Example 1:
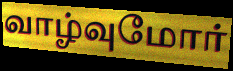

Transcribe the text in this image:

வாழ்வுமோர்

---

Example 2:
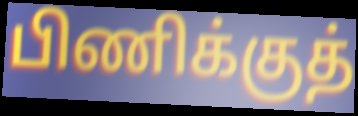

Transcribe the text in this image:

பிணிக்குத்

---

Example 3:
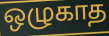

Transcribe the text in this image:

ஒழுகாத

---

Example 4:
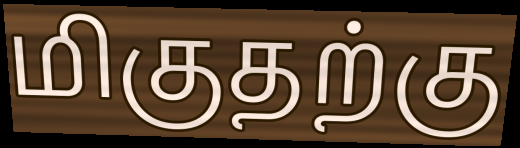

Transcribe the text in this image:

மிகுதற்கு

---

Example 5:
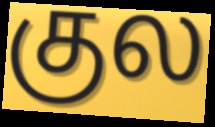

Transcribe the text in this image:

குல